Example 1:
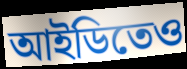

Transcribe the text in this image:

আইডিতেও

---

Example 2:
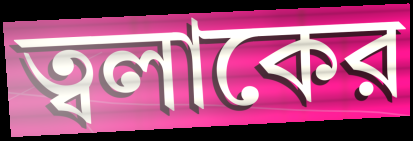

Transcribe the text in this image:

ত্বলাকের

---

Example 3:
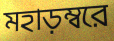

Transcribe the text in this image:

মহাড়ম্বরে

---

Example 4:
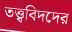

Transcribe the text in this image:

তত্ত্ববিদদের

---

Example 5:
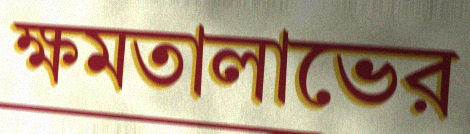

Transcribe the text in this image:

ক্ষমতালাভের